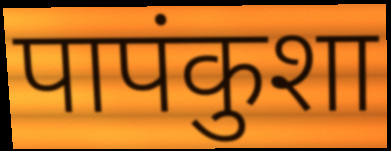
पापंकुशा